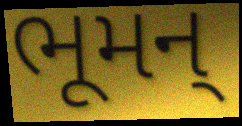
ભૂમન્